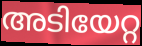
അടിയേറ്റ